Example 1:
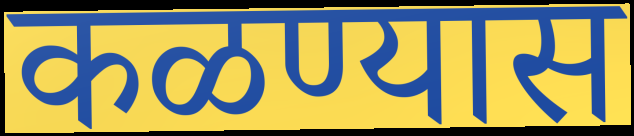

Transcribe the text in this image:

कळण्यास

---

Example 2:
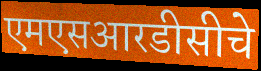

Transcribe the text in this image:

एमएसआरडीसीचे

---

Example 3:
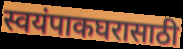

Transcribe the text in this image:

स्वयंपाकघरासाठी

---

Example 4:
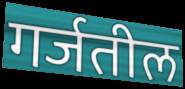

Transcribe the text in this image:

गर्जतील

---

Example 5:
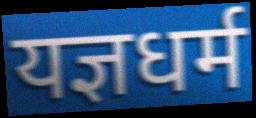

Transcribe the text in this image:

यज्ञधर्म